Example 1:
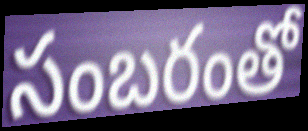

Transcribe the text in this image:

సంబరంతో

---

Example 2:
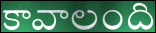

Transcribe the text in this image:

కావాలంది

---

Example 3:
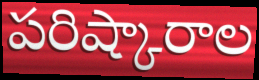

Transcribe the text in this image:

పరిష్కారాల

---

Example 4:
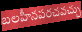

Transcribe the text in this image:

బలహీనపరచవచ్చు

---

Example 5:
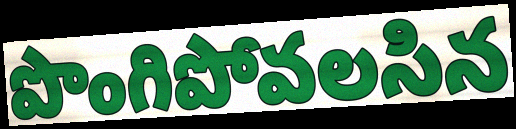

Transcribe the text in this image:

పొంగిపోవలసిన